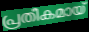
പ്രതീകമായ്